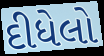
દીધેલો